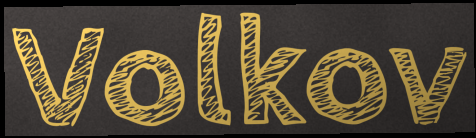
Volkov